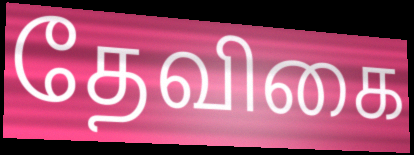
தேவிகை